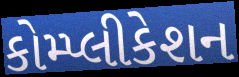
કોમ્પ્લીકેશન